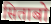
सिताबो